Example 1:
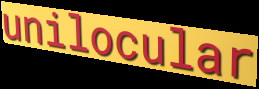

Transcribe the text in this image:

unilocular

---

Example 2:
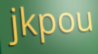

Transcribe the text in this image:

jkpou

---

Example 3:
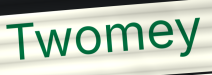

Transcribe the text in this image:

Twomey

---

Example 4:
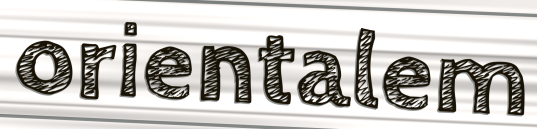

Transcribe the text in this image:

orientalem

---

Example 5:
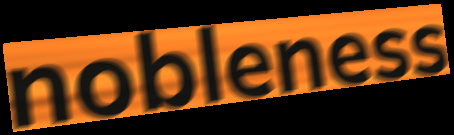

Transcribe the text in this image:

nobleness